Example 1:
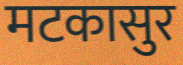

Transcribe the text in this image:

मटकासुर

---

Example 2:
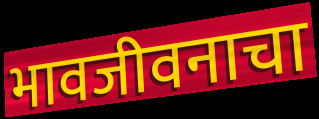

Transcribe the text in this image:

भावजीवनाचा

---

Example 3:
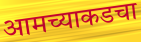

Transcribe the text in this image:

आमच्याकडचा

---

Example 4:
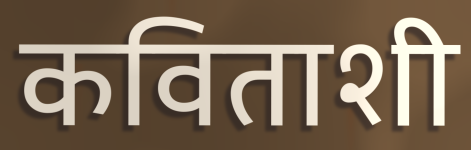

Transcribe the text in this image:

कविताशी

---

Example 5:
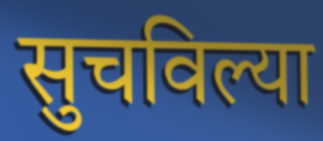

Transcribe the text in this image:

सुचविल्या